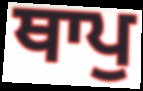
ਥਾਪੁ